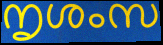
നൃശംസ